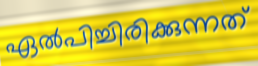
ഏൽപിച്ചിരിക്കുന്നത്